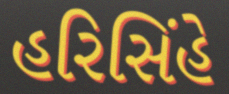
હરિસિંહે